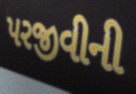
પરજીવીની